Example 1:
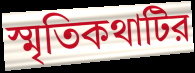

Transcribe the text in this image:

স্মৃতিকথাটির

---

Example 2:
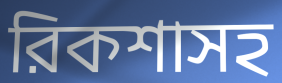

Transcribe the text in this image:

রিকশাসহ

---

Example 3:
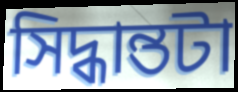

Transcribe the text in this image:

সিদ্ধান্তটা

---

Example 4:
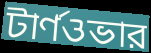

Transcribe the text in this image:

টার্ণওভার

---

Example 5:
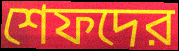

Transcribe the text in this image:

শেফদের